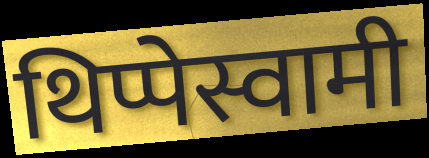
थिप्पेस्वामी